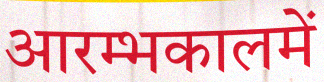
आरम्भकालमें